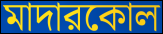
মাদারকোল